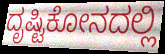
ದೃಷ್ಟಿಕೋನದಲ್ಲಿ